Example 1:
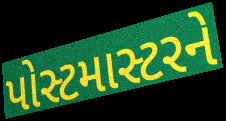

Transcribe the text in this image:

પોસ્ટમાસ્ટરને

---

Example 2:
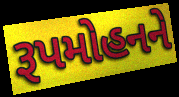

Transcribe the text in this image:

રૂપમોહનને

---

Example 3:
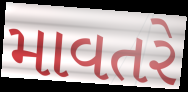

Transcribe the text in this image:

માવતરે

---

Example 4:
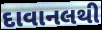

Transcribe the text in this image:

દાવાનલથી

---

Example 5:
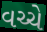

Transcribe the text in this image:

વચ્ચે